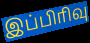
இப்பிரிவு